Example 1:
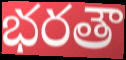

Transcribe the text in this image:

భరతౌ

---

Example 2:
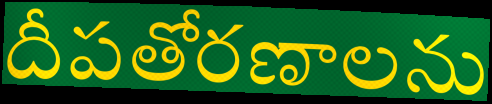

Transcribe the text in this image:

దీపతోరణాలను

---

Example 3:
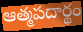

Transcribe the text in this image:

ఆత్మపదార్థం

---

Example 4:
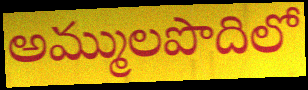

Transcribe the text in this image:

అమ్ములపొదిలో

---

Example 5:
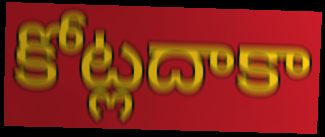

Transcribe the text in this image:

కోట్లదాకా